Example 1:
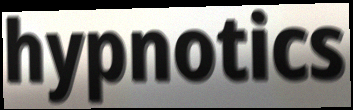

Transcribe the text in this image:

hypnotics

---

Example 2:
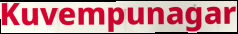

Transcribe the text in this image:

Kuvempunagar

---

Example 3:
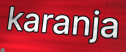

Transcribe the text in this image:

karanja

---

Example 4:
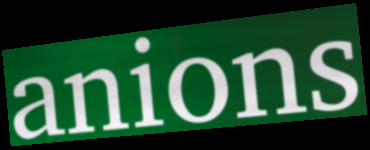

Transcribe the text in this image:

anions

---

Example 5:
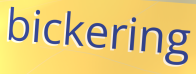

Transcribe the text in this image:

bickering